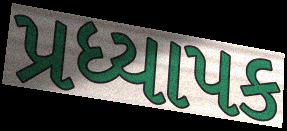
પ્રધ્યાપક